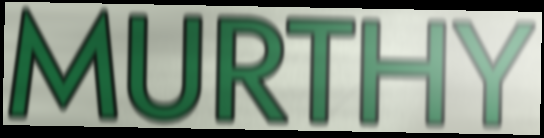
MURTHY